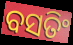
ବସତିଂ